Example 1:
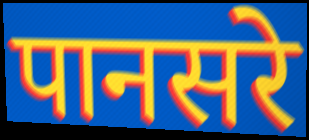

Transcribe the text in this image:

पानसरे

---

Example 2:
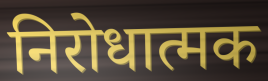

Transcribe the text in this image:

निरोधात्मक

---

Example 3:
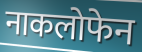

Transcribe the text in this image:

नाकलोफेन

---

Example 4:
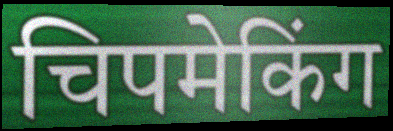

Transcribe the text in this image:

चिपमेकिंग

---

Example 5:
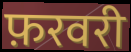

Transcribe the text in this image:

फ़रवरी